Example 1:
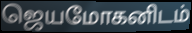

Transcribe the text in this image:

ஜெயமோகனிடம்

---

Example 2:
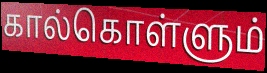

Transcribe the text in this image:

கால்கொள்ளும்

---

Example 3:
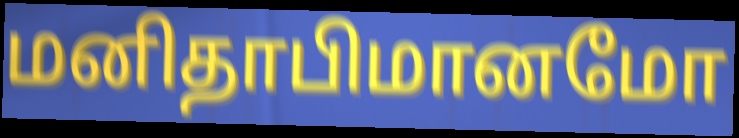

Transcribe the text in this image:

மனிதாபிமானமோ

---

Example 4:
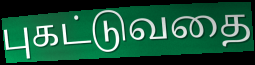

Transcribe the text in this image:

புகட்டுவதை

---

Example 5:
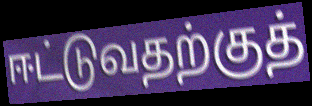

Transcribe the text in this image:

ஈட்டுவதற்குத்